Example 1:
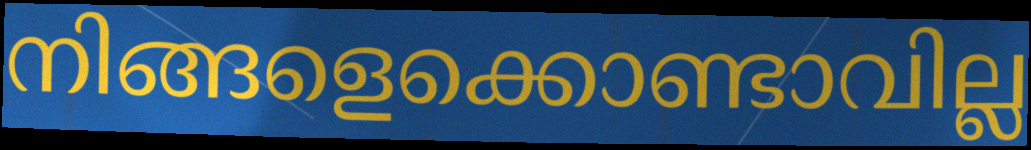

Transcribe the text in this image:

നിങ്ങളെക്കൊണ്ടാവില്ല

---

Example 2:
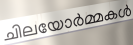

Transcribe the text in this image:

ചിലയോർമ്മകൾ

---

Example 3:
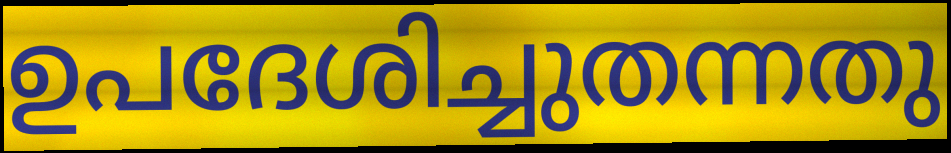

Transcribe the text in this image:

ഉപദേശിച്ചുതന്നതു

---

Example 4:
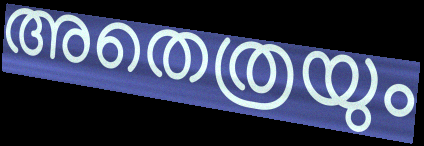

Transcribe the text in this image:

അതെത്രയും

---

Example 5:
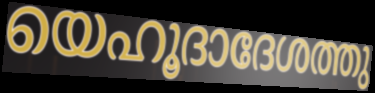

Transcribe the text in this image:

യെഹൂദാദേശത്തു